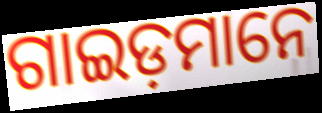
ଗାଇଡ଼ମାନେ